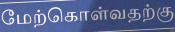
மேற்கொள்வதற்கு